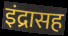
इंद्रासह